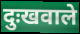
दुःखवाले